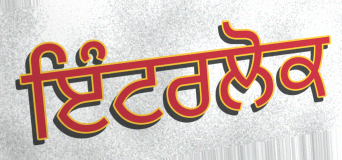
ਇੰਟਰਲੋਕ